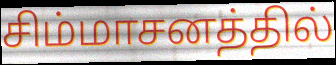
சிம்மாசனத்தில்